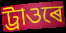
ট্ৰাওৰে